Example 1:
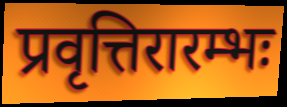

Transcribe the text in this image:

प्रवृत्तिरारम्भः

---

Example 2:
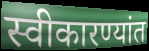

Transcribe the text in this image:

स्वीकारण्यांत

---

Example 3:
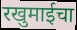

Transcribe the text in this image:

रखुमाईचा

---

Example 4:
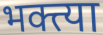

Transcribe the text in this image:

भक्त्या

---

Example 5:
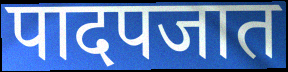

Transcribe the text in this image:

पादपजात